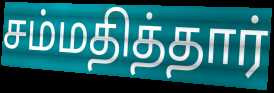
சம்மதித்தார்